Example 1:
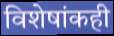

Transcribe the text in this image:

विशेषांकही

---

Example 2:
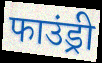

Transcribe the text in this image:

फाउंड्री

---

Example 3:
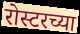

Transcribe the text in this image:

रोस्टरच्या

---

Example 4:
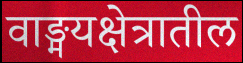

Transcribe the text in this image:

वाङ्मयक्षेत्रातील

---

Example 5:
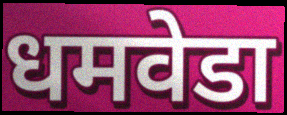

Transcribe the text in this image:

धमवेडा